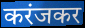
करंजकर